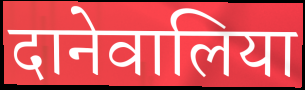
दानेवालिया